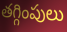
తగ్గింపులు